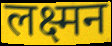
लक्ष्मन